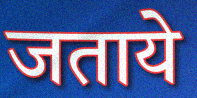
जताये